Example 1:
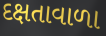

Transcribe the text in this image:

દક્ષતાવાળા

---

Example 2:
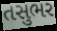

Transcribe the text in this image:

તસુભર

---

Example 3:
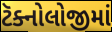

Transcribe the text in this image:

ટૅક્નોલોજીમાં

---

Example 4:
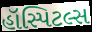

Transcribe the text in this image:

હૉસ્પિટલ્સ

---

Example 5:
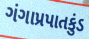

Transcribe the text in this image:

ગંગાપ્રપાતકુંડ